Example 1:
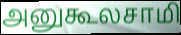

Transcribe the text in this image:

அனுகூலசாமி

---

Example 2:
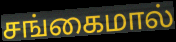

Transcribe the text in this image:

சங்கைமால்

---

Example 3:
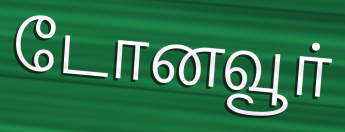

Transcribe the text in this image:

டோனவூர்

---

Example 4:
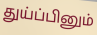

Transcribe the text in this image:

துய்ப்பினும்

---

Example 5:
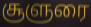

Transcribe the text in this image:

சூளுரை